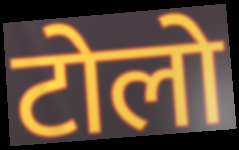
टोलो